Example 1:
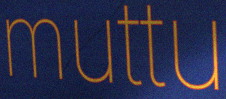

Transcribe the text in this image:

muttu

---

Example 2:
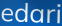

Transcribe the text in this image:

edari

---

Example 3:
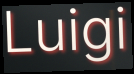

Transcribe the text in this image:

Luigi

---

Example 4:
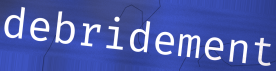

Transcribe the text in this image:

debridement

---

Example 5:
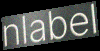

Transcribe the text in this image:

nlabel